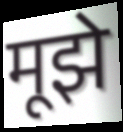
मूझे